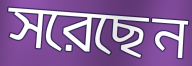
সরেছেন